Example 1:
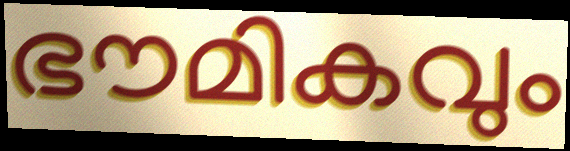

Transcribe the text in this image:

ഭൗമികവും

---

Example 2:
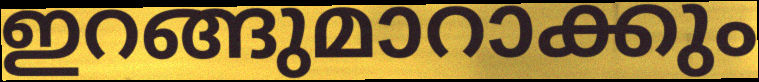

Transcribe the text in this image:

ഇറങ്ങുമാറാക്കും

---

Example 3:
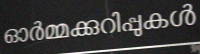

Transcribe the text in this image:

ഓർമ്മക്കുറിപ്പുകൾ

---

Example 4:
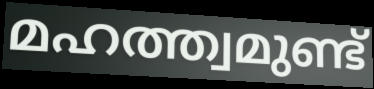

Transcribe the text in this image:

മഹത്ത്വമുണ്ട്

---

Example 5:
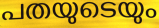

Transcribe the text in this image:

പതയുടെയും